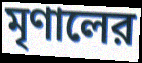
মৃণালের